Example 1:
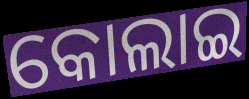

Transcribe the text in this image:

କୋଲାଇ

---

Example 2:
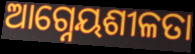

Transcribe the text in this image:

ଆଗ୍ନେୟଶୀଳତା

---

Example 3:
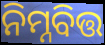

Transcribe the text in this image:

ନିମ୍ନବିତ୍ତ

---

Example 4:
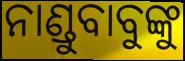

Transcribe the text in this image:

ନାଣ୍ଡୁବାବୁଙ୍କୁ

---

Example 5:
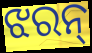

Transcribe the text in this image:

ଝରନ୍